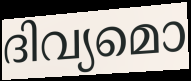
ദിവ്യമൊ